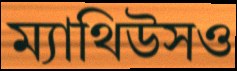
ম্যাথিউসও